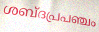
ശബ്ദപ്രപഞ്ചം